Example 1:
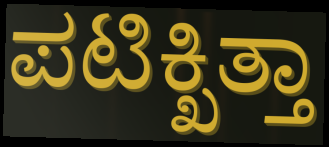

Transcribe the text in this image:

ಪಟಿಕ್ಖಿತ್ತಾ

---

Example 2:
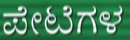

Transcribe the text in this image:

ಪೇಟೆಗಳ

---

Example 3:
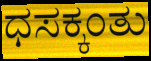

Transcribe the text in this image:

ಧಸಕ್ಕಂತು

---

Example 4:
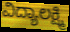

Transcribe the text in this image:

ವಿದ್ಯಾಲಕ್ಷ್ಮಿ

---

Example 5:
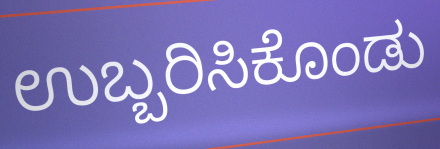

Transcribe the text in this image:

ಉಬ್ಬರಿಸಿಕೊಂಡು